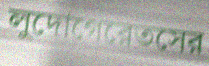
লুদোগেরেতসের